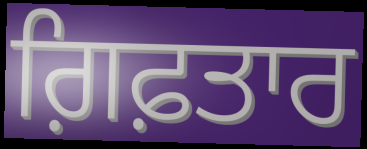
ਗ਼ਿਫ਼ਤਾਰ